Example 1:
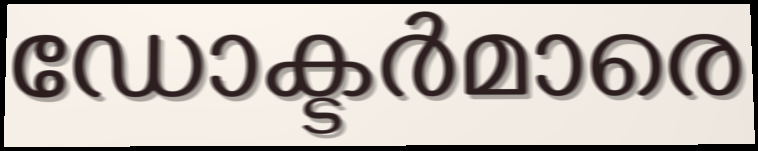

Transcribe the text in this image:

ഡോക്ടർമാരെ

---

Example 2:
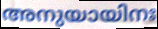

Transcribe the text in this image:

അനുയായിനഃ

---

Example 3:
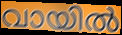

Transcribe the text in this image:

വായിൽ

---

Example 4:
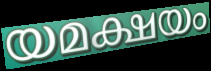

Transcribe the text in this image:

യമക്ഷയം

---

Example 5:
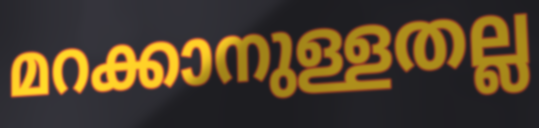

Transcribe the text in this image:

മറക്കാനുള്ളതല്ല